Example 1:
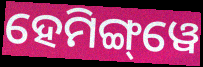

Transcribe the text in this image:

ହେମିଙ୍ଗ୍‌ୱେ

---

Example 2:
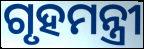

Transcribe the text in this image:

ଗୃହମନ୍ତ୍ରୀ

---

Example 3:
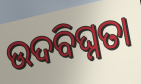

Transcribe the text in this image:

ଉଦବିଘ୍ନତା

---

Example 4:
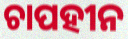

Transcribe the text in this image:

ଚାପହୀନ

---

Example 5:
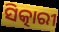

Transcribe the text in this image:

ସିତ୍କାରୀ